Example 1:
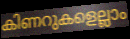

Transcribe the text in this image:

കിണറുകളെല്ലാം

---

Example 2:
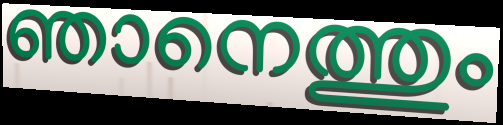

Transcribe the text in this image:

ഞാനെത്തും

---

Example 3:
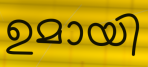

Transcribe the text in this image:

ഉമായി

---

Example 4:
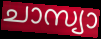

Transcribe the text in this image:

ചാസ്യാ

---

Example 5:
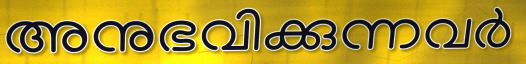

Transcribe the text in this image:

അനുഭവിക്കുന്നവർ